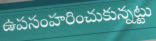
ఉపసంహరించుకున్నట్టు